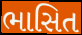
ભાસિત